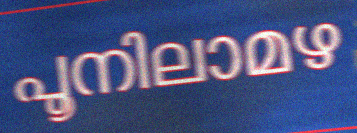
പൂനിലാമഴ